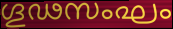
ഗൂഢസംഘം